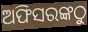
ଅଫିସରଙ୍କଠୁ